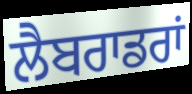
ਲੈਬਰਾਡਰਾਂ